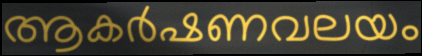
ആകർഷണവലയം